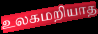
உலகமறியாத